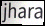
jhara